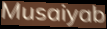
Musaiyab